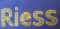
Riess